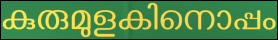
കുരുമുളകിനൊപ്പം